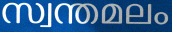
സ്വന്തമലം